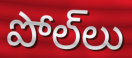
పోల్‌లు